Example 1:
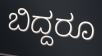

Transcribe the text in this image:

ಬಿದ್ದರೂ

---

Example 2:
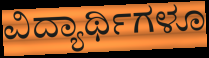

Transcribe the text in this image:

ವಿದ್ಯಾರ್ಥಿಗಳೂ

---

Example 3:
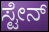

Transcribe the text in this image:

ಸ್ಟೇನ್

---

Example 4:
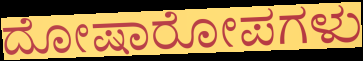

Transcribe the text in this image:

ದೋಷಾರೋಪಗಳು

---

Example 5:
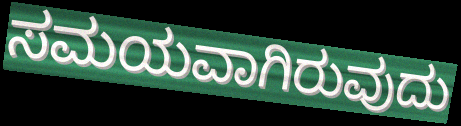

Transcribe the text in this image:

ಸಮಯವಾಗಿರುವುದು